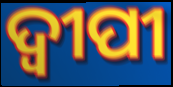
ଦ୍ଵୀପୀ